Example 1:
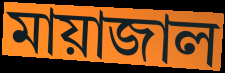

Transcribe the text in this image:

মায়াজাল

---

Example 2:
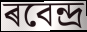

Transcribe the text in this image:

ৰবেন্দ্ৰ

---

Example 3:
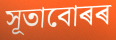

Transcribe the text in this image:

সূতাবোৰৰ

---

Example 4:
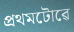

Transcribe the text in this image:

প্ৰথমটোৱে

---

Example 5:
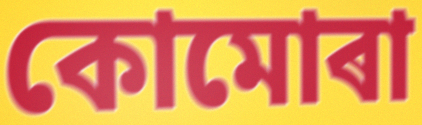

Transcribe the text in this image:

কোমোৰা